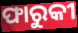
ଫାରୁକୀ